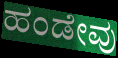
ಹಂಡೇವು